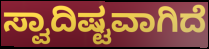
ಸ್ವಾದಿಷ್ಟವಾಗಿದೆ